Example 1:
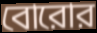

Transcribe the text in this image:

বোরোর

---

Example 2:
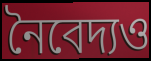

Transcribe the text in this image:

নৈবেদ্যও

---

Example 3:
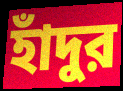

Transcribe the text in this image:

হাঁদুর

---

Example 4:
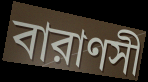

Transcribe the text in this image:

বারাণসী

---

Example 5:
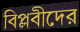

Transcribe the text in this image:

বিপ্লবীদের